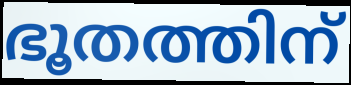
ഭൂതത്തിന്